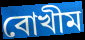
বোখীম